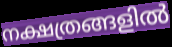
നക്ഷത്രങ്ങളിൽ